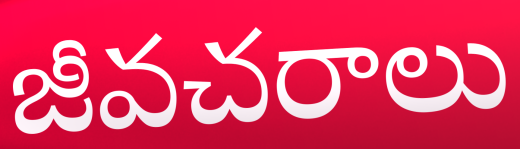
జీవచరాలు